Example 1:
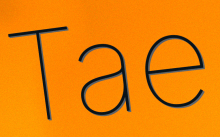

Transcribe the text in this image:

Tae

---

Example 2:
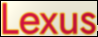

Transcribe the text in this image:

Lexus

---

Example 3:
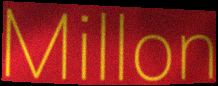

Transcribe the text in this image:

Millon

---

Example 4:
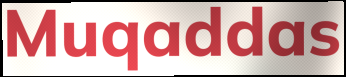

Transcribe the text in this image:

Muqaddas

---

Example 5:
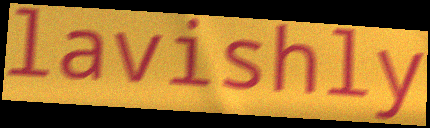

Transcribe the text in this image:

lavishly